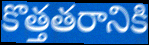
కొత్తతరానికి